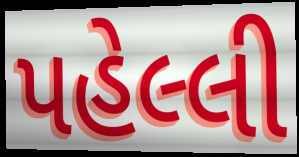
પહેલ્લી